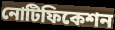
নোটিফিকেশন